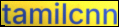
tamilcnn